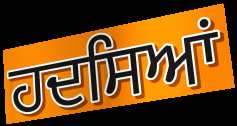
ਹਦਸਿਆਂ